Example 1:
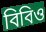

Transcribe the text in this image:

বিবিও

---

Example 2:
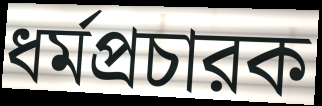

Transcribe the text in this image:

ধর্মপ্রচারক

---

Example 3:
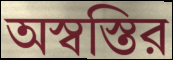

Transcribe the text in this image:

অস্বস্তির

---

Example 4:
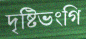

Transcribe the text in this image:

দৃষ্টিভংগি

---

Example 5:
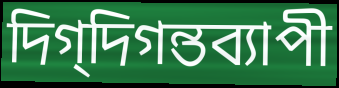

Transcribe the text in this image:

দিগ্‌দিগন্তব্যাপী